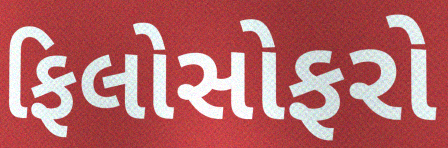
ફિલોસોફરો